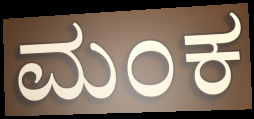
ಮಂಕ